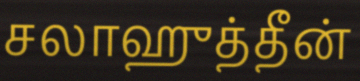
சலாஹுத்தீன்